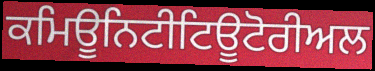
ਕਮਿਊਨਿਟੀਟਿਊਟੋਰੀਅਲ